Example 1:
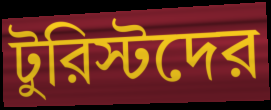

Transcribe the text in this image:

টুরিস্টদের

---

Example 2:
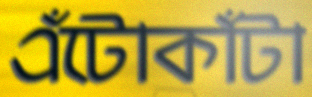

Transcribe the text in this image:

এঁটোকাঁটা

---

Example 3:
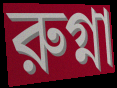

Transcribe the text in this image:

রুগ্না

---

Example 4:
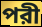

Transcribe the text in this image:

পরী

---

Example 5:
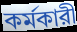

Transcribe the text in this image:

কর্মকারী